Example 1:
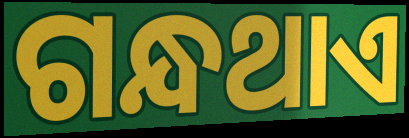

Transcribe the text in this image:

ଗନ୍ଧଥାଏ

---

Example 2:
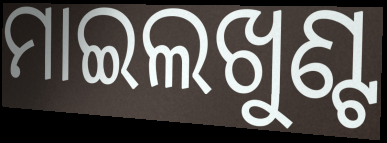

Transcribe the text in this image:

ମାଇଲଖୁଣ୍ଟ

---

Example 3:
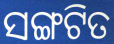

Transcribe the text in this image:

ସଙ୍ଗଟିତ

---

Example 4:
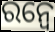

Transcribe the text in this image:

ରନ୍ୱେ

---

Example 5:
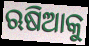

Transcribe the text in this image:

ଋଷିଆକୁ